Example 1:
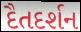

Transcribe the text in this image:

દૈતદર્શન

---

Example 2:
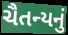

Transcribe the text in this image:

ચૈતન્યનું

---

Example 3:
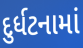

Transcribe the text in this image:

દુર્ધટનામાં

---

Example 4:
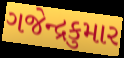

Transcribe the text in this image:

ગજેન્દ્રકુમાર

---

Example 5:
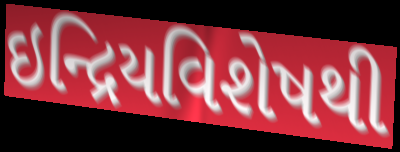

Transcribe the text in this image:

ઇન્દ્રિયવિશેષથી